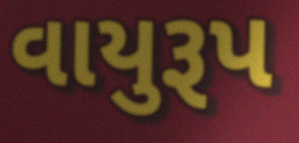
વાયુરૂપ